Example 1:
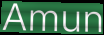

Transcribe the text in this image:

Amun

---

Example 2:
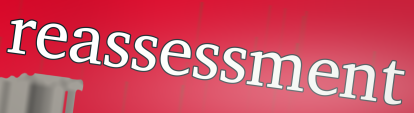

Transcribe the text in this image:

reassessment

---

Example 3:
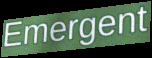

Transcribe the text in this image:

Emergent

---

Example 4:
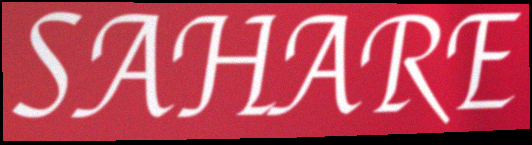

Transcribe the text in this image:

SAHARE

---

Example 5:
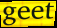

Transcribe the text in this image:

geet